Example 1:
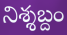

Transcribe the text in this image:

నిశ్శబ్దం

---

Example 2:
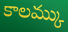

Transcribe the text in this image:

కాలమ్కు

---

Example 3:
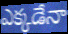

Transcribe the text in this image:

ఎక్కడేనా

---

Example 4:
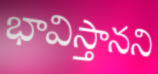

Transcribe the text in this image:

భావిస్తానని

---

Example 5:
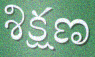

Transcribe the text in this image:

శిక్షణ